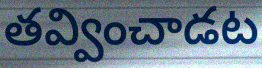
తవ్వించాడట